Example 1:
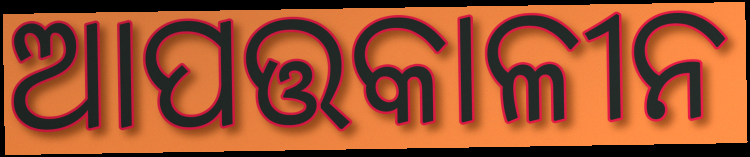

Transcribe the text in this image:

ଆପତ୍ତକାଳୀନ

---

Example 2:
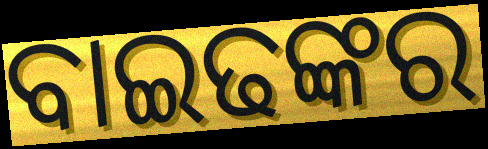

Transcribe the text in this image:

ବାଇଢଙ୍କର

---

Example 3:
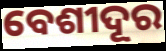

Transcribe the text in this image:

ବେଶୀଦୂର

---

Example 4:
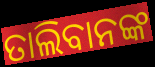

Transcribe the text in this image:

ତାଲିବାନଙ୍କ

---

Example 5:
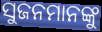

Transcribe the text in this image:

ସୁଜନମାନଙ୍କୁ